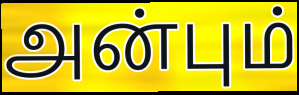
அன்பும்